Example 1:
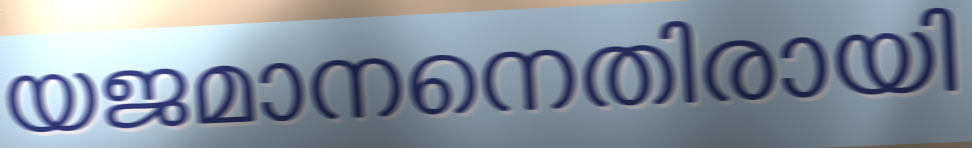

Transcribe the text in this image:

യജമാനനെതിരായി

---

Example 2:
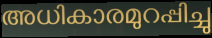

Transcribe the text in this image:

അധികാരമുറപ്പിച്ചു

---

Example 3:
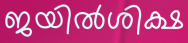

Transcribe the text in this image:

ജയിൽശിക്ഷ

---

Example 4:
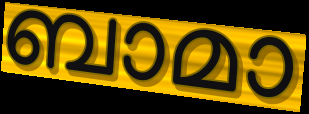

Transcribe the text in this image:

ബാമാ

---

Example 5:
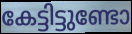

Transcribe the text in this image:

കേട്ടിട്ടുണ്ടോ